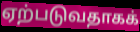
ஏற்படுவதாகக்